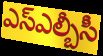
ఎస్ఎల్బీసీ